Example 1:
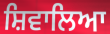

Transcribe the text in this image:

ਸ਼ਿਵਾਲਿਆ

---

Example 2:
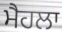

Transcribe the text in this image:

ਮੈਹਲਾ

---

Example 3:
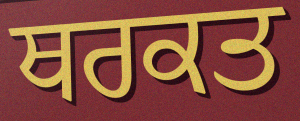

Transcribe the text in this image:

ਥਰਕਤ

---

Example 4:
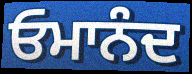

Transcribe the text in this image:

ਓਮਾਨੰਦ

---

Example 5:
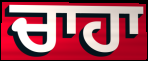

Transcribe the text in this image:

ਚਾਹਾ